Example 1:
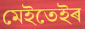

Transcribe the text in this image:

মেইতেইৰ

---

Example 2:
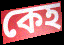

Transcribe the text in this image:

কেহ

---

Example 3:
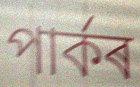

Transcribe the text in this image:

পাৰ্কৰ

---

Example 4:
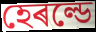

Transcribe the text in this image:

হেৰল্ডে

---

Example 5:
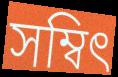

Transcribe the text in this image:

সম্বিৎ